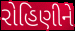
રોહિણીને